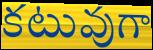
కటువుగా